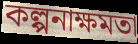
কল্পনাক্ষমতা